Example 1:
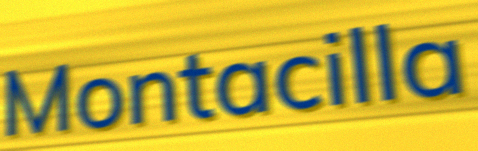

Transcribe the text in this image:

Montacilla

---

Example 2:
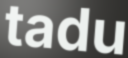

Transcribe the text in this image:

tadu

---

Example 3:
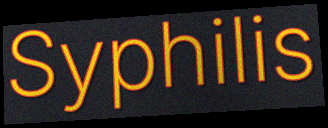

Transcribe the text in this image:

Syphilis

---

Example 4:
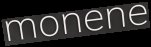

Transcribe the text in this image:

monene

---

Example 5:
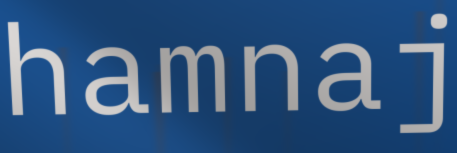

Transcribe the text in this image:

hamnaj